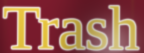
Trash